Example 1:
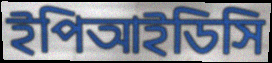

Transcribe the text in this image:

ইপিআইডিসি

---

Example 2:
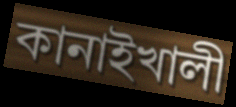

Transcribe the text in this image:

কানাইখালী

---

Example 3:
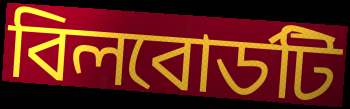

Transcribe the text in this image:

বিলবোর্ডটি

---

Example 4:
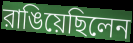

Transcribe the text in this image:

রাঙিয়েছিলেন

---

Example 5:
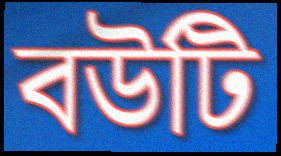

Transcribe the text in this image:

বউটি